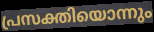
പ്രസക്തിയൊന്നും